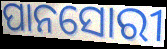
ପାନସୋରୀ